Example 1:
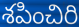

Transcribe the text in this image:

శపించిరి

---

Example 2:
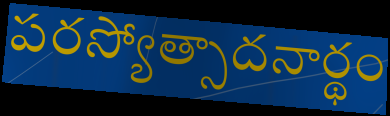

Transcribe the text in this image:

పరస్యోత్సాదనార్థం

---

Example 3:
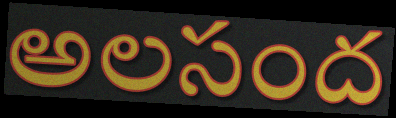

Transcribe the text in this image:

అలసంద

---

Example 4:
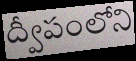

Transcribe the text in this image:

ద్వీపంలోని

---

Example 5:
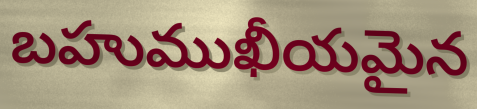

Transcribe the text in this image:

బహుముఖీయమైన